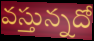
వస్తున్నదో